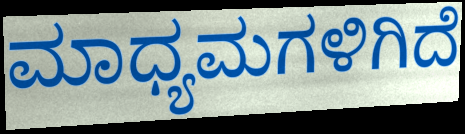
ಮಾಧ್ಯಮಗಳಿಗಿದೆ